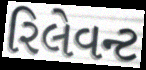
રિલેવન્ટ